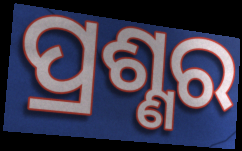
ପ୍ରଶ୍ଣର